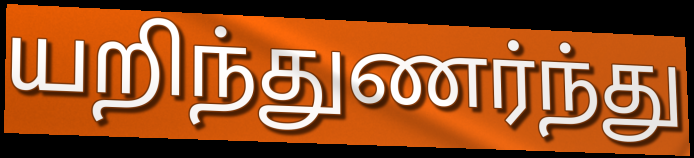
யறிந்துணர்ந்து